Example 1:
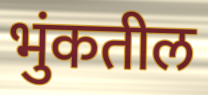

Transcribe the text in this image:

भुंकतील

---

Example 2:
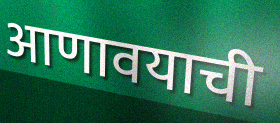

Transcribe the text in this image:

आणावयाची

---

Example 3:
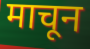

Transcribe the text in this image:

माचून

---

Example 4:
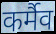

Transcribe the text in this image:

कर्मैव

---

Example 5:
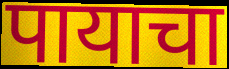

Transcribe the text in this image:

पायाचा